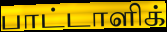
பாட்டாளிக்